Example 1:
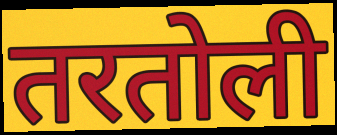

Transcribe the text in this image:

तरतोली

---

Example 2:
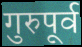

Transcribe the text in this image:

गुरुपूर्व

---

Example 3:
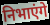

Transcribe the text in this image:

निभाएंगे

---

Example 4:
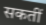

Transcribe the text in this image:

सकतीं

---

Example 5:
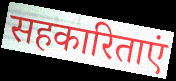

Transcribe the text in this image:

सहकारिताएं